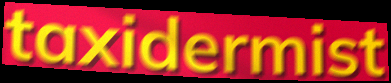
taxidermist